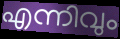
എന്നിവും